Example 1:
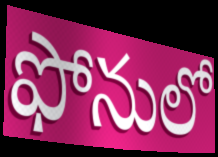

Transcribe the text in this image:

ఫోనులో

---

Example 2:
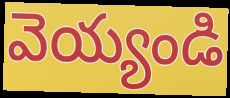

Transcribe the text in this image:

వెయ్యండి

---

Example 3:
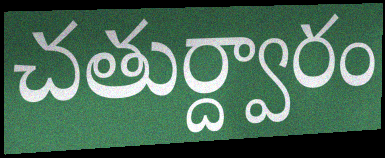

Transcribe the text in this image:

చతుర్ద్వారం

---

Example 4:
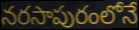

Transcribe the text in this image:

నరసాపురంలోనే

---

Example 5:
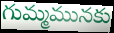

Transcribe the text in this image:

గుమ్మమునకు